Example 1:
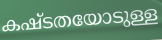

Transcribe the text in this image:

കഷ്ടതയോടുള്ള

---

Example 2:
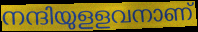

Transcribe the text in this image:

നന്ദിയുളളവനാണ്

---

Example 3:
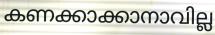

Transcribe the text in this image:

കണക്കാക്കാനാവില്ല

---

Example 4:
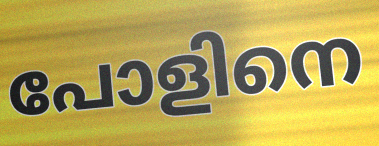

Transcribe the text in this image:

പോളിനെ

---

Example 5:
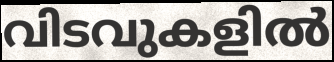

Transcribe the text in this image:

വിടവുകളിൽ